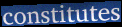
constitutes